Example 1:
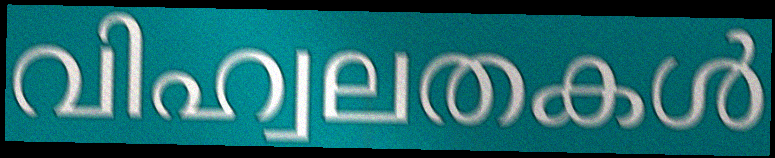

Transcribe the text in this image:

വിഹ്വലതകൾ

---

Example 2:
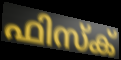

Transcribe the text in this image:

ഫിസ്ക്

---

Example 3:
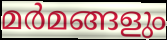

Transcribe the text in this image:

മർമങ്ങളും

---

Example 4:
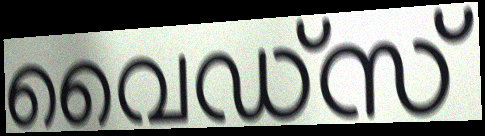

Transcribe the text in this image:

വൈഡ്സ്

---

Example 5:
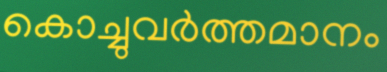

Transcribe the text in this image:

കൊച്ചുവർത്തമാനം